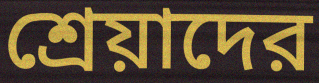
শ্রেয়াদের